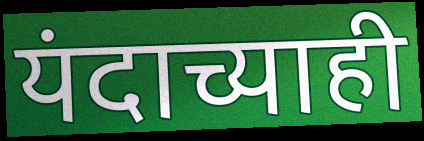
यंदाच्याही